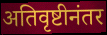
अतिवृष्टीनंतर